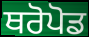
ਥਰੋਪੋਡ